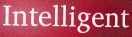
Intelligent